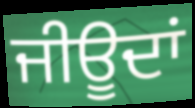
ਜੀਊਦਾਂ